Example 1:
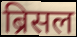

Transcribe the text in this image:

ब्रिसल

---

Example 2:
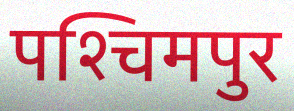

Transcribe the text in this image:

पश्चिमपुर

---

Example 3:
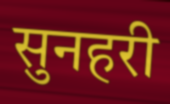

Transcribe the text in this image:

सुनहरी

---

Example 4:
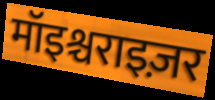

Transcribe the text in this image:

मॉइश्चराइज़र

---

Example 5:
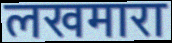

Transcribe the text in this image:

लखमारा